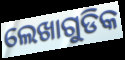
ଲେଖାଗୁଡିକ